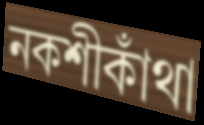
নকশীকাঁথা